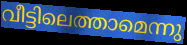
വീട്ടിലെത്താമെന്നു